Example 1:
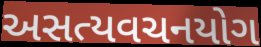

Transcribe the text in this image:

અસત્યવચનયોગ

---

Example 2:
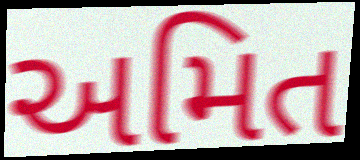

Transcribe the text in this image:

અમિત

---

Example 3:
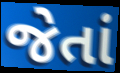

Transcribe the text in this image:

જેતાં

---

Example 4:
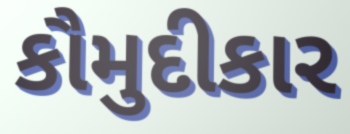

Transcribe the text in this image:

કૌમુદીકાર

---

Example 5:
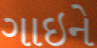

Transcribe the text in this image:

ગાઇને